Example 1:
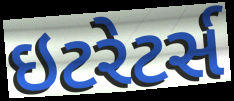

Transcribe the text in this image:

ઇટરેટર્સ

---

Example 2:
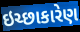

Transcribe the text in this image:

ઇચ્છાકારેણ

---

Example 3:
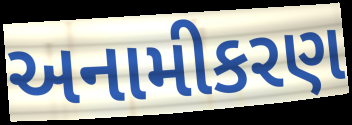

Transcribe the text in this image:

અનામીકરણ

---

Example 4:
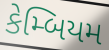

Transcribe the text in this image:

કેમ્બિયમ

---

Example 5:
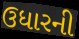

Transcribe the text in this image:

ઉધારની